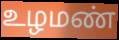
உழமண்